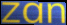
zan